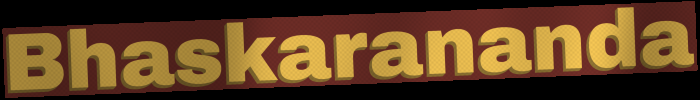
Bhaskarananda